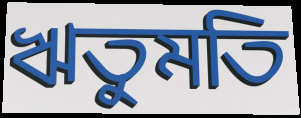
ঋতুমতি